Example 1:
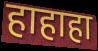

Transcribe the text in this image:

हाहाहा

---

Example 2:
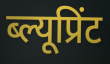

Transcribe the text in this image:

ब्ल्यूप्रिंट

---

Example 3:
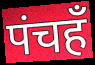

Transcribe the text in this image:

पंचहँ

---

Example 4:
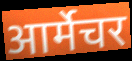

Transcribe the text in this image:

आर्मेचर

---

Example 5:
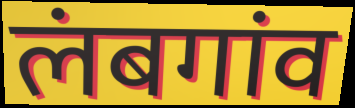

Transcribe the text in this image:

लंबगांव